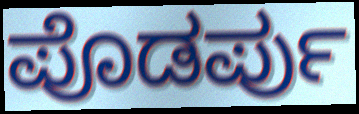
ಪೊಡರ್ಪು